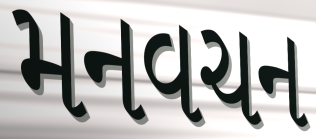
મનવચન